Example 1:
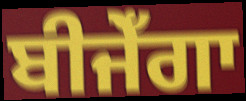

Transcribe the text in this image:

ਬੀਜੇਁਗਾ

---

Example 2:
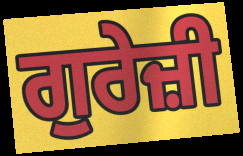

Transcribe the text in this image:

ਗੁਰੇਜ਼ੀ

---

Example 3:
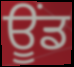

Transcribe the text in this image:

ਊਂਡ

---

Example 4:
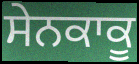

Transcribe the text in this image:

ਸੇਨਕਾਕੂ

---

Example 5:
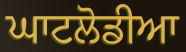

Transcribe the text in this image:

ਘਾਟਲੋਡੀਆ